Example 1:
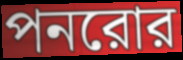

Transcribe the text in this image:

পনরোর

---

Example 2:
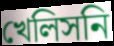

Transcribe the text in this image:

খেলিসনি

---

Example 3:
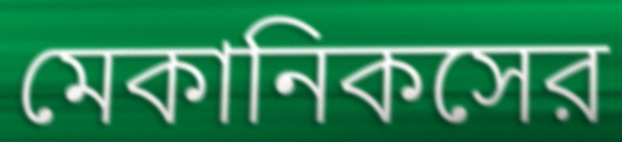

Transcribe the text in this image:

মেকানিকসের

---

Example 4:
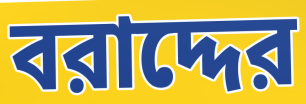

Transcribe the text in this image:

বরাদ্দের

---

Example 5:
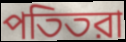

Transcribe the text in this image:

পতিতরা